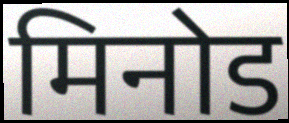
मिनोड